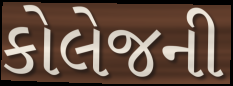
કોલેજની